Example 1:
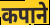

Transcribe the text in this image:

कपाने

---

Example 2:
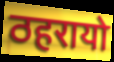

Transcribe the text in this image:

ठहरायो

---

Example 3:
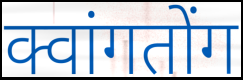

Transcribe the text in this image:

क्वांगतोंग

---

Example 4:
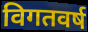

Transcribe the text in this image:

विगतवर्ष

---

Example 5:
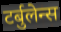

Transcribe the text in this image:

टर्बुलेन्स